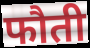
फौती